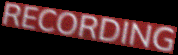
RECORDING